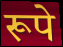
रूपे